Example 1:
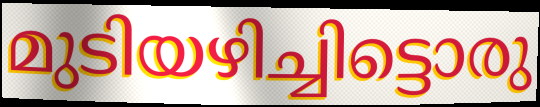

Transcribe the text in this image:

മുടിയഴിച്ചിട്ടൊരു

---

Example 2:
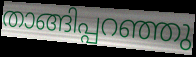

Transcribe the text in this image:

താങ്ങിപ്പറഞ്ഞു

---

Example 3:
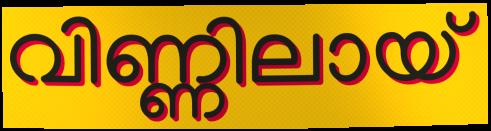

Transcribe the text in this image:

വിണ്ണിലായ്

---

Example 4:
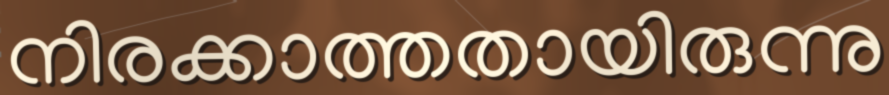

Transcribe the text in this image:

നിരക്കാത്തതായിരുന്നു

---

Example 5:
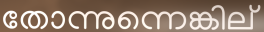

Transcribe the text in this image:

തോന്നുന്നെങ്കില്